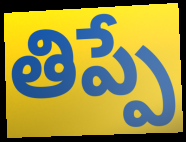
తిప్పే